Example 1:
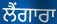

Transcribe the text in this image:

ਲੈਂਗਾਰਾ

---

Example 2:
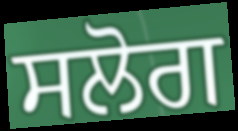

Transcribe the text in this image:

ਸਲੋਗ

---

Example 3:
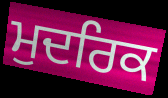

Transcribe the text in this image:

ਮੁਦਰਿਕ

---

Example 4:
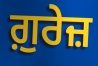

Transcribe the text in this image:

ਗ਼ੁਰੇਜ਼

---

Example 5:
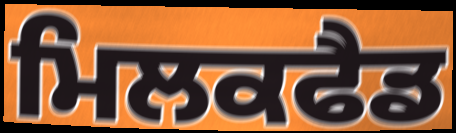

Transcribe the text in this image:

ਮਿਲਕਫੈਡ